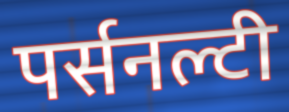
पर्सनल्टी